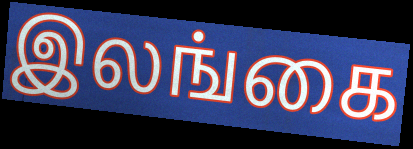
இலங்கை